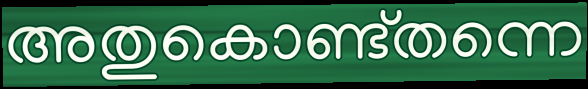
അതുകൊണ്ട്തന്നെ